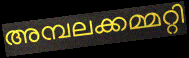
അമ്പലക്കമ്മറ്റി